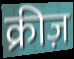
क्रीज़